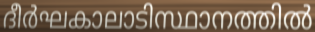
ദീർഘകാലാടിസ്ഥാനത്തിൽ